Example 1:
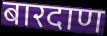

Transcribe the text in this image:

बारदाण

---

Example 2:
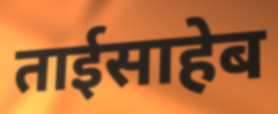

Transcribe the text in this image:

ताईसाहेब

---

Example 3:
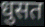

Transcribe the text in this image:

धुसत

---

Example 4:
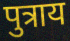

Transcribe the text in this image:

पुत्राय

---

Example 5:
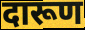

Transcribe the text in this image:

दारूण